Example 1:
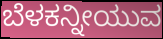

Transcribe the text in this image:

ಬೆಳಕನ್ನೀಯುವ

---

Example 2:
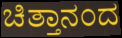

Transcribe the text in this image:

ಚಿತ್ತಾನಂದ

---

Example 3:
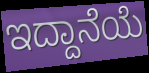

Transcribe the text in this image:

ಇದ್ದಾನೆಯೆ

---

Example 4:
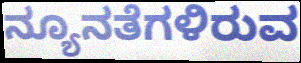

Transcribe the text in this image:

ನ್ಯೂನತೆಗಳಿರುವ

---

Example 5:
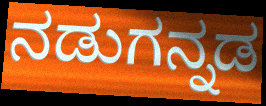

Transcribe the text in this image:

ನಡುಗನ್ನಡ